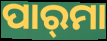
ପାର୍‌ମା